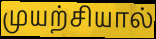
முயற்சியால்